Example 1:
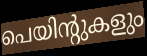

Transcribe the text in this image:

പെയിന്റുകളും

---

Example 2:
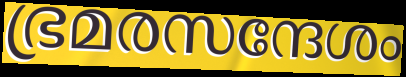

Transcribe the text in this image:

ഭ്രമരസന്ദേശം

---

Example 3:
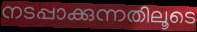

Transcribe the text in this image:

നടപ്പാക്കുന്നതിലൂടെ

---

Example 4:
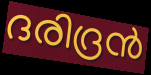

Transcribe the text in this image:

ദരിദ്രൻ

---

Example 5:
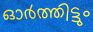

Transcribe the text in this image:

ഓർത്തിട്ടും